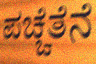
ಪಚ್ಚೆತೆನೆ